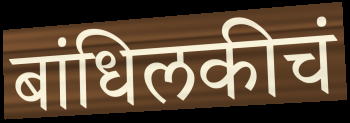
बांधिलकीचं